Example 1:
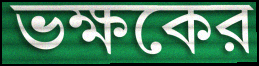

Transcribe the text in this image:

ভক্ষকের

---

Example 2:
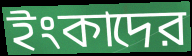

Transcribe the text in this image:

ইংকাদের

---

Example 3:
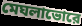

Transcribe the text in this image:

মেঘলাভোরে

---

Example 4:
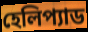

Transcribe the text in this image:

হেলিপ্যাড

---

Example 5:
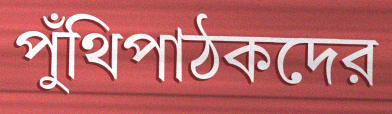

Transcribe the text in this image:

পুঁথিপাঠকদের